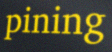
pining